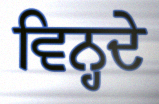
ਵਿਨ੍ਹਦੇ